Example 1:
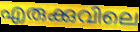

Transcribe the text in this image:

എരുക്കുവിലെ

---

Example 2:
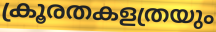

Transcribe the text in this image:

ക്രൂരതകളത്രയും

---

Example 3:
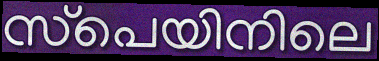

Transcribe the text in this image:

സ്‌പെയിനിലെ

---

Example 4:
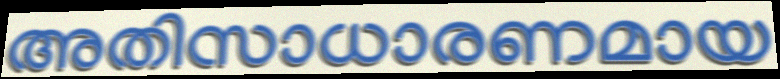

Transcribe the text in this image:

അതിസാധാരണമായ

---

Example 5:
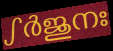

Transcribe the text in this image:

ഽർജുനഃ